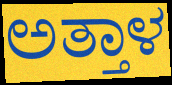
ಅತ್ತಾಳ